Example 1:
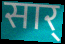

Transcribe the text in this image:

सार्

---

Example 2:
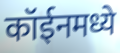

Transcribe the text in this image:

कॉईनमध्ये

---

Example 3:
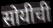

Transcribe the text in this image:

सोयीची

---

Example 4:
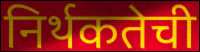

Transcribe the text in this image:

निर्थकतेची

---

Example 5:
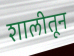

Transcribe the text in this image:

शालीतून